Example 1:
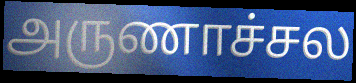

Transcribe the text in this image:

அருணாச்சல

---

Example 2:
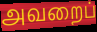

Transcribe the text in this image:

அவறைப்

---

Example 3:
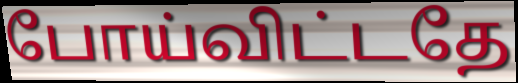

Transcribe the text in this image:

போய்விட்டதே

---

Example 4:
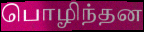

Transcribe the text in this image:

பொழிந்தன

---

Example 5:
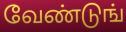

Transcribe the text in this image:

வேண்டுங்